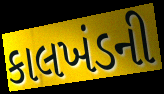
કાલખંડની